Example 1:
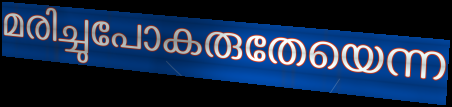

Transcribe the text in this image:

മരിച്ചുപോകരുതേയെന്ന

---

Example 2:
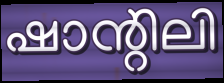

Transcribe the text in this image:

ഷാന്റിലി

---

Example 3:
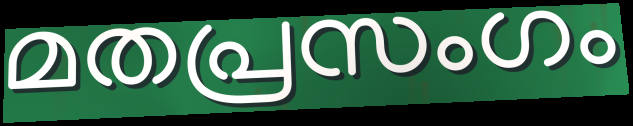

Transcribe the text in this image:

മതപ്രസംഗം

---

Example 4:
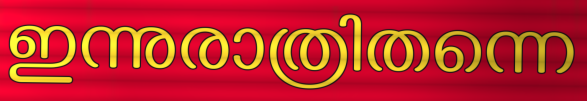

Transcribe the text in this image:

ഇന്നുരാത്രിതന്നെ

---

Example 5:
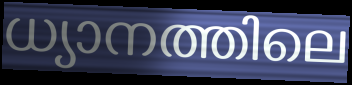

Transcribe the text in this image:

ധ്യാനത്തിലെ